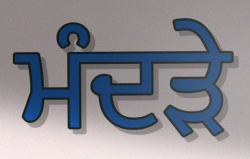
ਮੰਦੜੇ